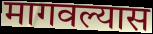
मागवल्यास